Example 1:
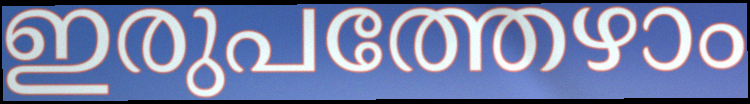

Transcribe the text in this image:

ഇരുപത്തേഴാം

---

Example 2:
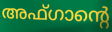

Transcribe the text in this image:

അഫ്ഗാന്റെ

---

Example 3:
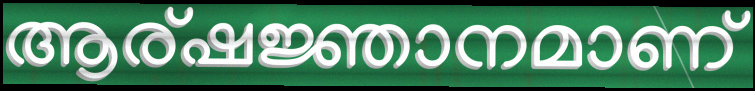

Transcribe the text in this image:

ആര്ഷജ്ഞാനമാണ്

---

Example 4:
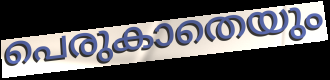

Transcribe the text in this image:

പെരുകാതെയും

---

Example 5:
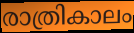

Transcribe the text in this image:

രാത്രികാലം